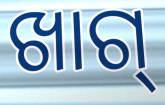
ଖାଗ୍